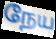
நேய